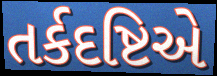
તર્કદષ્ટિએ